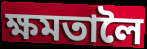
ক্ষমতালৈ